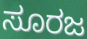
ಸೂರಜ